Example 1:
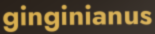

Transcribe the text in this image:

ginginianus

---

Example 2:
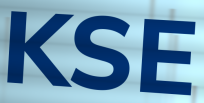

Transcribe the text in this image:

KSE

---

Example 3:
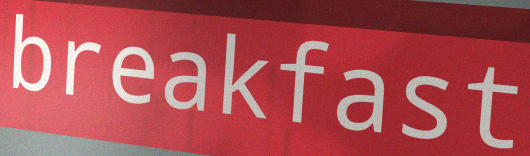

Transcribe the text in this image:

breakfast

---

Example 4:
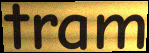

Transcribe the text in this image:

tram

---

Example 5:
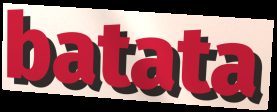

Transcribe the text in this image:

batata